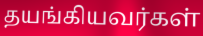
தயங்கியவர்கள்